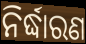
ନିର୍ଦ୍ଧାରଣ